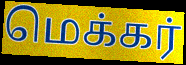
மெக்கர்